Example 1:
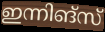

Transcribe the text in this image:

ഇന്നിങ്സ്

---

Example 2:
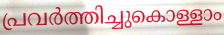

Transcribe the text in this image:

പ്രവർത്തിച്ചുകൊള്ളാം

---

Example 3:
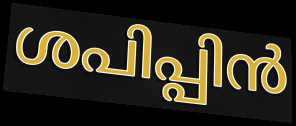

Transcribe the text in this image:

ശപിപ്പിൻ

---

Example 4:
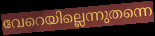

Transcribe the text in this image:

വേറെയില്ലെന്നുതന്നെ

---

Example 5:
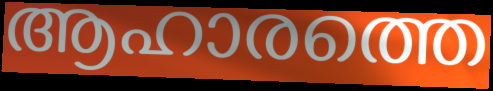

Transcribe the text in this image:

ആഹാരത്തെ